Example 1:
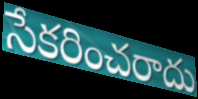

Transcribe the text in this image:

సేకరించరాదు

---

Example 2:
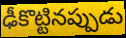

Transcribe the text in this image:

ఢీకొట్టినప్పుడు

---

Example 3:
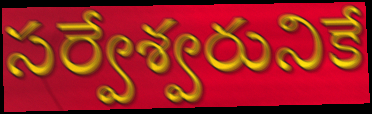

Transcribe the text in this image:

సర్వేశ్వరునికే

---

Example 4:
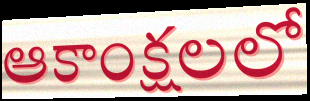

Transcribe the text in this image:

ఆకాంక్షలలో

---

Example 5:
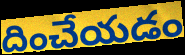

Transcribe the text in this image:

దించేయడం